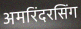
अमरिंदरसिंग